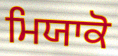
ਮਿਯਾਕੋ